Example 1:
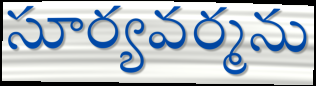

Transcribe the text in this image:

సూర్యవర్మను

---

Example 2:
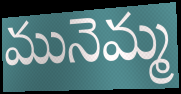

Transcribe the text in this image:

మునెమ్మ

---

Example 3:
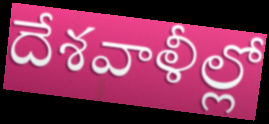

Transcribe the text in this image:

దేశవాళీల్లో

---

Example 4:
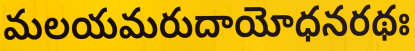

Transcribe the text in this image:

మలయమరుదాయోధనరథః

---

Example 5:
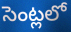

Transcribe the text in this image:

సెంట్లలో